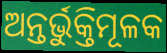
ଅନ୍ତର୍ଭୁକ୍ତିମୂଳକ